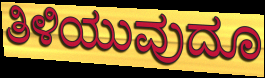
ತಿಳಿಯುವುದೂ